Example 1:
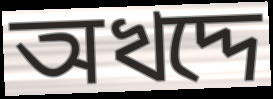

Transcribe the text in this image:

অখদ্দে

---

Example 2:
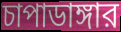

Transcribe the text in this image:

চাপাডাঙ্গার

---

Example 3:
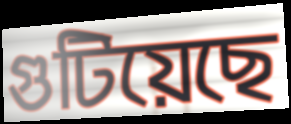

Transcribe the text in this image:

গুটিয়েছে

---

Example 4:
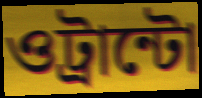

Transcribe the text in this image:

ওট্রান্টো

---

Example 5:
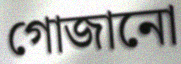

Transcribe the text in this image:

গোজানো